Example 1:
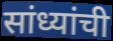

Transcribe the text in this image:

सांध्यांची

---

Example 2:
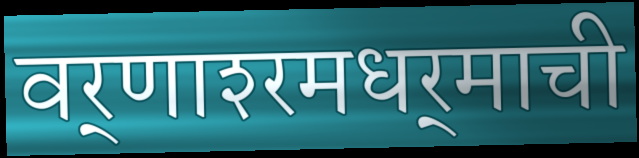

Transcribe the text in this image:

वर्णाश्रमधर्माची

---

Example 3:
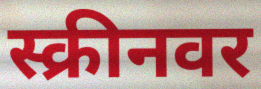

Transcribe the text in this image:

स्क्रीनवर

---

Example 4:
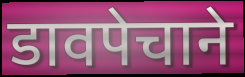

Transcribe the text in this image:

डावपेचाने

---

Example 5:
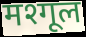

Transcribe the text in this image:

मश्गूल